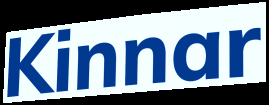
Kinnar